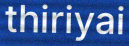
thiriyai